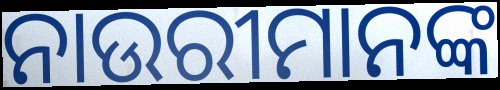
ନାଉରୀମାନଙ୍କ